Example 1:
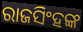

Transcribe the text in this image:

ରାଜସିଂହଙ୍କ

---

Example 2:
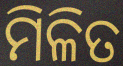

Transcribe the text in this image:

ମିଳିତ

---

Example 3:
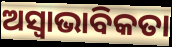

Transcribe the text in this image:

ଅସ୍ୱାଭାବିକତା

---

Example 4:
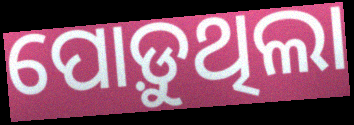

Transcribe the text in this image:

ପୋଡ଼ୁଥିଲା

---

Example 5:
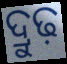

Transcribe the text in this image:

ଦ୍ରୁଢ଼